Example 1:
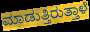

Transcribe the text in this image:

ಮಾಡುತ್ತಿರುತ್ತಾಳೆ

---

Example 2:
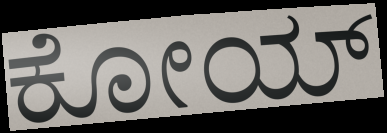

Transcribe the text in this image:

ಕೋಯ್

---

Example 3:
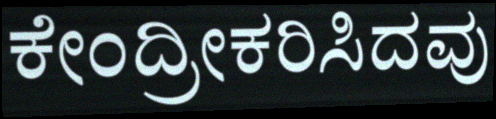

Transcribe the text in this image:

ಕೇಂದ್ರೀಕರಿಸಿದವು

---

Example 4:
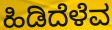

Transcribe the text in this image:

ಹಿಡಿದೆಳೆವ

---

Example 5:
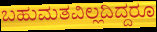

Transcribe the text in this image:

ಬಹುಮತವಿಲ್ಲದಿದ್ದರೂ